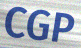
CGP